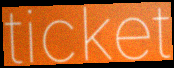
ticket